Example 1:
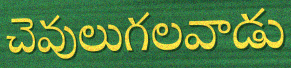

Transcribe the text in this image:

చెవులుగలవాడు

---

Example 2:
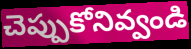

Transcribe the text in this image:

చెప్పుకోనివ్వండి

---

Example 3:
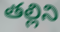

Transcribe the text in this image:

తల్లిని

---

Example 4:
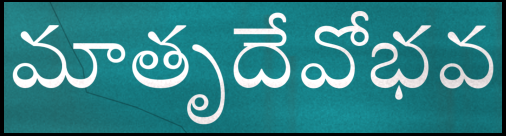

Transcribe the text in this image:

మాతృదేవోభవ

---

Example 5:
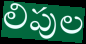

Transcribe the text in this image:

లిపుల